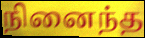
நினைந்த